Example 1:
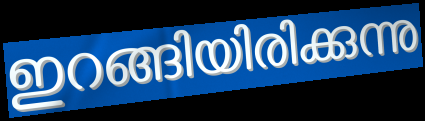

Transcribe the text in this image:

ഇറങ്ങിയിരിക്കുന്നു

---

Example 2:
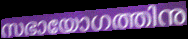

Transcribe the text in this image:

സഭായോഗത്തിനു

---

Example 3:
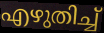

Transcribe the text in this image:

എഴുതിച്ച്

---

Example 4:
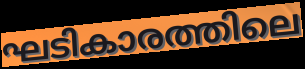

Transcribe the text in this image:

ഘടികാരത്തിലെ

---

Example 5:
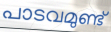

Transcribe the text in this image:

പാടവമുണ്ട്